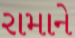
રામાને